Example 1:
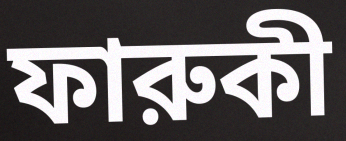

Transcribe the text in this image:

ফারুকী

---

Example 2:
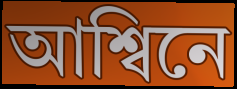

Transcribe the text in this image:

আশ্বিনে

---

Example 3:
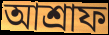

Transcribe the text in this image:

আশ্রাফ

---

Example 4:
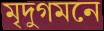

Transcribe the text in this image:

মৃদুগমনে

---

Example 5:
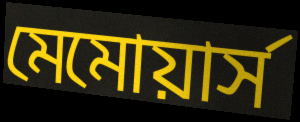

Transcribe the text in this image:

মেমোয়ার্স